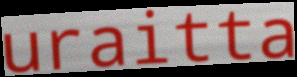
uraitta